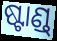
ଷ୍ଟାଣ୍ଡ୍